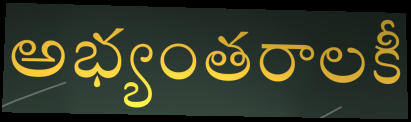
అభ్యంతరాలకీ